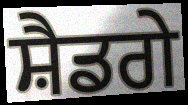
ਸ਼ੈਡਗੇ